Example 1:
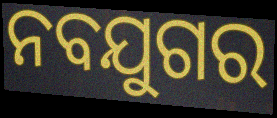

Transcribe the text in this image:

ନବଯୁଗର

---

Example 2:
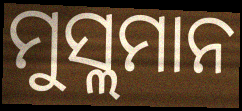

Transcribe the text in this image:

ମୁସ୍ଲମାନ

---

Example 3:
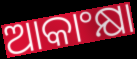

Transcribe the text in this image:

ଆକାଂକ୍ଷା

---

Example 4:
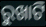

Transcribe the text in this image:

ରୁଖାଟି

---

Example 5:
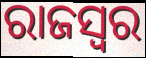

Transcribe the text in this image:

ରାଜସ୍ବର